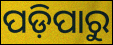
ପଡ଼ିପାରୁ